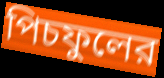
পিচফুলের